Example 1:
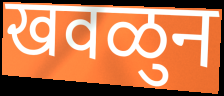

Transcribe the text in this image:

खवळुन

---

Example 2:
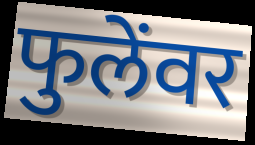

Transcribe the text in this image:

फुलेंवर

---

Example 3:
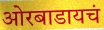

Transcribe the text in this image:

ओरबाडायचं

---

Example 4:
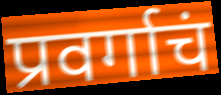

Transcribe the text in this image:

प्रवर्गाचं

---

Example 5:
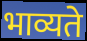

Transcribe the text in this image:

भाव्यते